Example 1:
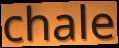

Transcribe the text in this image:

chale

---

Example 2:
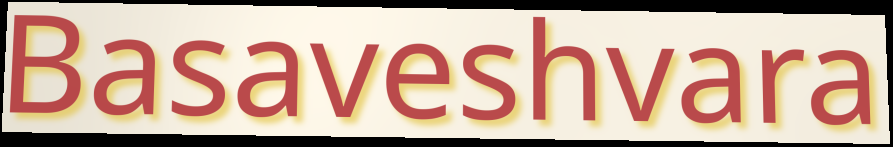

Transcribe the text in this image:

Basaveshvara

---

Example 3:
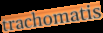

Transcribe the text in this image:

trachomatis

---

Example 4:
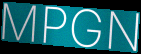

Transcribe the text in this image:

MPGN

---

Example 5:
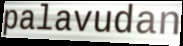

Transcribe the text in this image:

palavudan